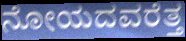
ನೋಯದವರೆತ್ತ